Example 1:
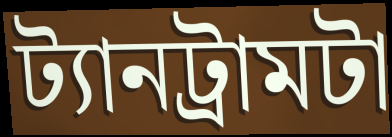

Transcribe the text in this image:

ট্যানট্রামটা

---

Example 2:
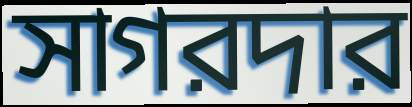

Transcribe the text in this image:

সাগরদার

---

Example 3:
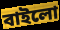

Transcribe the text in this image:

বাইলো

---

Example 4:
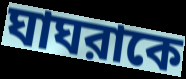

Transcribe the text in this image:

ঘাঘরাকে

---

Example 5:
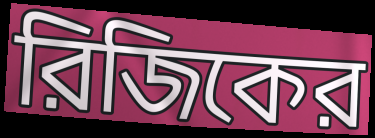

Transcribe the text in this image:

রিজিকের